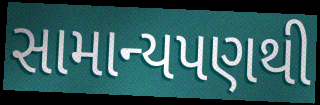
સામાન્યપણથી